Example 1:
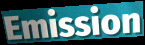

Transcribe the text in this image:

Emission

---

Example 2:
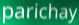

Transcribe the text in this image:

parichay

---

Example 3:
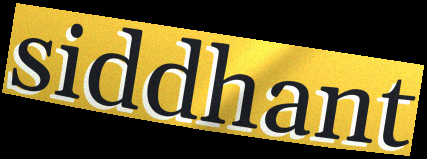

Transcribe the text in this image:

siddhant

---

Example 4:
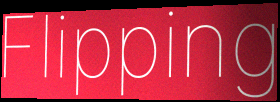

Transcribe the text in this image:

Flipping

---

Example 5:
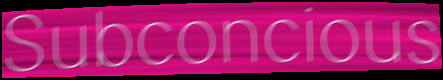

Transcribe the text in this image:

Subconcious